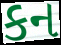
કન